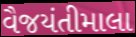
વૈજયંતીમાલા